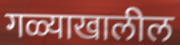
गळ्याखालील